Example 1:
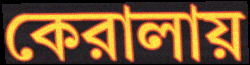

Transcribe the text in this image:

কেরালায়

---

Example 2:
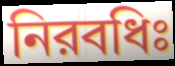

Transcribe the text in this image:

নিরবধিঃ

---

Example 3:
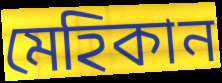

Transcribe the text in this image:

মেহিকান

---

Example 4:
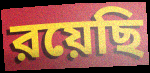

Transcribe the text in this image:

রয়েছি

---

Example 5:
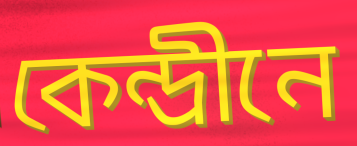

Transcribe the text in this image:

কেন্দ্রীনে